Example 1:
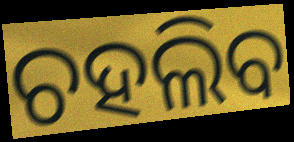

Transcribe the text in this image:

ଚହଲିବ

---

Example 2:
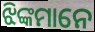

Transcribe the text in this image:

ଝିଙ୍କମାନେ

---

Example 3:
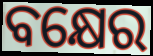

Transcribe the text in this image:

ବକ୍ଷେର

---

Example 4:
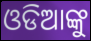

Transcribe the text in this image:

ଓଡିଆଙ୍କୁ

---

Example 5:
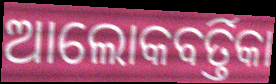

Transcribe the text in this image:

ଆଲୋକବର୍ତ୍ତିକା